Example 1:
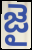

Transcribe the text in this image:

జై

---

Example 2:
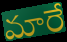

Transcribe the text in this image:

మారే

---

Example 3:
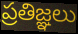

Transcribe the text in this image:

ప్రతిజ్ఞలు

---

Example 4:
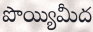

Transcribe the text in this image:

పొయ్యిమీద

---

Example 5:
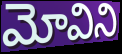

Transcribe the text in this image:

మోవిని